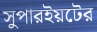
সুপারইয়টের